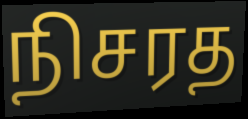
நிசரத